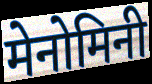
मेनोमिनी